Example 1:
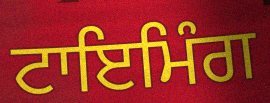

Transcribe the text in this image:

ਟਾਇਮਿੰਗ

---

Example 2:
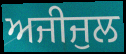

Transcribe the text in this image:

ਅਜੀਜੁਲ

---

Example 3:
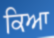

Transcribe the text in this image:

ਕਿਆ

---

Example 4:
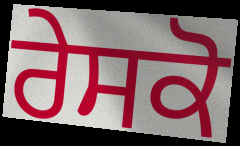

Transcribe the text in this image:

ਰੇਸਕੋ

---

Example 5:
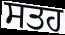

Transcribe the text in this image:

ਸਤਹ